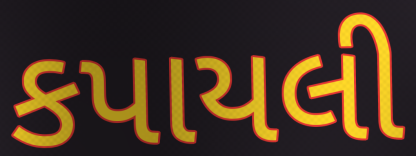
કપાયલી